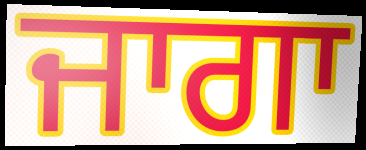
ਜਾਗਾ